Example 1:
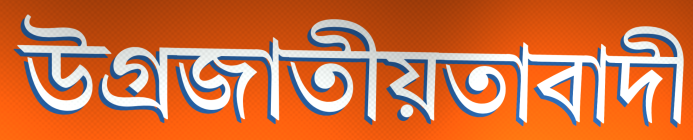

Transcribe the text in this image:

উগ্ৰজাতীয়তাবাদী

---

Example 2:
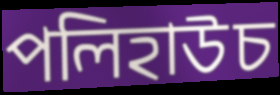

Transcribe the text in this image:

পলিহাউচ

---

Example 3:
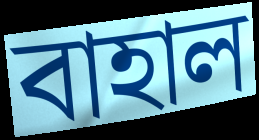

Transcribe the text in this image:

বাহাল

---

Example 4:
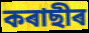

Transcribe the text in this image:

কৰাছীৰ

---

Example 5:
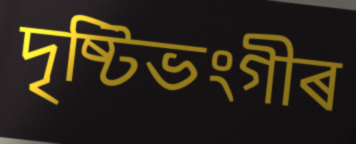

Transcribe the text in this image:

দৃষ্টিভংগীৰ